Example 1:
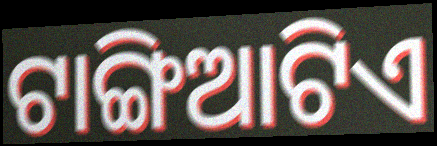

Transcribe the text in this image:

ଟାଙ୍ଗିଆଟିଏ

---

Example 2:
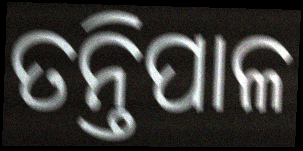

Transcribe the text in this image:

ତନ୍ତିପାଳ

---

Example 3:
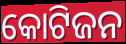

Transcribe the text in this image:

କୋଟିଜନ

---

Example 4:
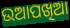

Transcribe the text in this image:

ଉଆପଖିଆ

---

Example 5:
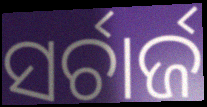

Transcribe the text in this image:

ସର୍ଚାର୍ଜ